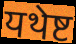
यथेष्ट